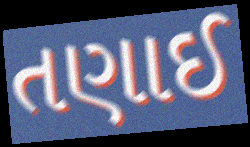
તણાઈ